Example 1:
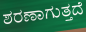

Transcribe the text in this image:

ಶರಣಾಗುತ್ತದೆ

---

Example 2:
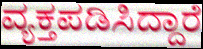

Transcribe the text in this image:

ವ್ಯಕ್ತಪಡಿಸಿದ್ದಾರೆ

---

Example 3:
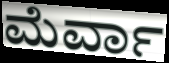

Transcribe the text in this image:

ಮೆರ್ವಾ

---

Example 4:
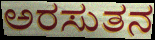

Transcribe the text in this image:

ಅರಸುತನ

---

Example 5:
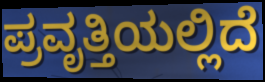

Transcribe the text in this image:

ಪ್ರವೃತ್ತಿಯಲ್ಲಿದೆ